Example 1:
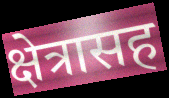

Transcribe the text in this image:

क्षेत्रासह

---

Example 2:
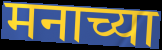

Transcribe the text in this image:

मनाच्या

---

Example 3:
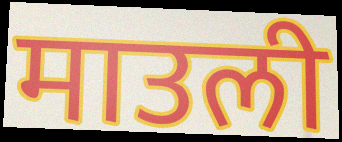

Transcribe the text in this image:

माउली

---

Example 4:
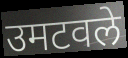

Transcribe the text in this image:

उमटवले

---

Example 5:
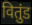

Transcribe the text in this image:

वितुंड